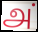
அ்